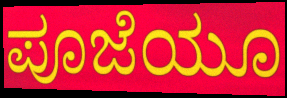
ಪೂಜೆಯೂ